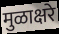
मुळाक्षरे